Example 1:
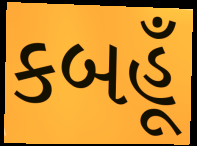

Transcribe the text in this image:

કબહૂઁ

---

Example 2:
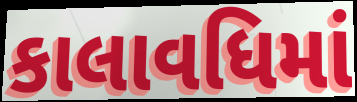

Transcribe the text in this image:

કાલાવધિમાં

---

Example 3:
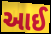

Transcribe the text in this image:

આઈ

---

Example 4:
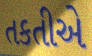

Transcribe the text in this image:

તકતીએ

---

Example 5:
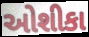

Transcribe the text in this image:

ઓશીકા